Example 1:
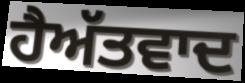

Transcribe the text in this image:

ਹੈਅੱਤਵਾਦ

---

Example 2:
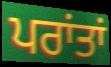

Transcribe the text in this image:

ਪਰਾਂਤਾਂ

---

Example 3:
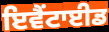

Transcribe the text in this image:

ਇਵੈਂਟਾਈਡ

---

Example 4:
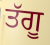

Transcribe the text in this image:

ਤੱਗੂ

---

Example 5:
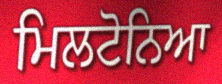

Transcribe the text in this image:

ਮਿਲਟੋਨਿਆ